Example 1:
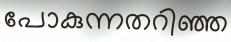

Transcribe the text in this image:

പോകുന്നതറിഞ്ഞ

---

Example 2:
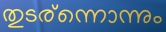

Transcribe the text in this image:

തുടര്ന്നൊന്നും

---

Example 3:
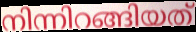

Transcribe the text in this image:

നിന്നിറങ്ങിയത്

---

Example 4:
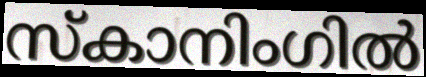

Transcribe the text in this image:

സ്കാനിംഗിൽ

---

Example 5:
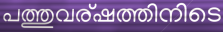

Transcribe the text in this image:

പത്തുവര്ഷത്തിനിടെ